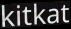
kitkat